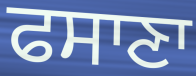
ਫਸਾਣਾ